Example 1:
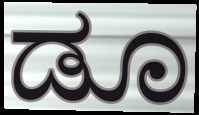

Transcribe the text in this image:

ಡೂ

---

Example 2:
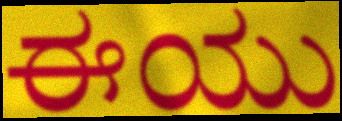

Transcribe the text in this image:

ಈಯು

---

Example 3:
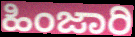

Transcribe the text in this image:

ಹಿಂಜಾರಿ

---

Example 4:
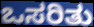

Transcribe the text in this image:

ಒಸರಿತು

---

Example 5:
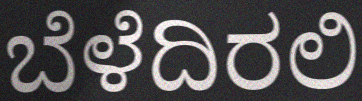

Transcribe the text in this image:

ಬೆಳೆದಿರಲಿ